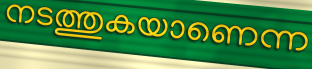
നടത്തുകയാണെന്ന